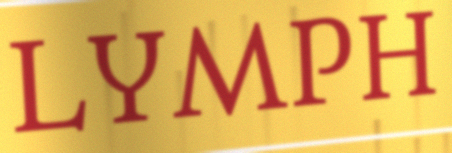
LYMPH